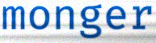
monger